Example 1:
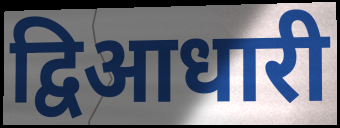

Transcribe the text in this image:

द्विआधारी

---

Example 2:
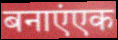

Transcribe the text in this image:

बनाएंएक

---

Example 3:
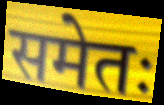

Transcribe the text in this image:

समेतः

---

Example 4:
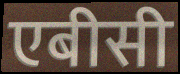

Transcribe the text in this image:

एबीसी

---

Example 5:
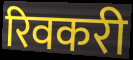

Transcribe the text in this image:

रिवकरी